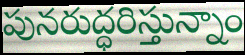
పునరుద్ధరిస్తున్నాం